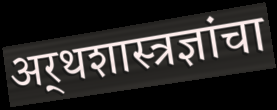
अर्थशास्त्रज्ञांचा